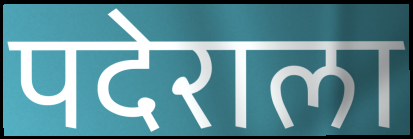
पदेराला